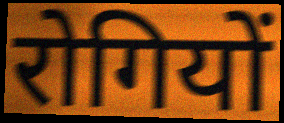
रोगियों